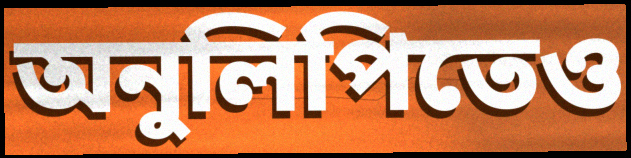
অনুলিপিতেও